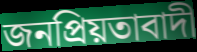
জনপ্ৰিয়তাবাদী